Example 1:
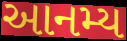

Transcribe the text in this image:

આનમ્ય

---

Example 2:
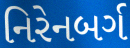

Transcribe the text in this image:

નિરેનબર્ગ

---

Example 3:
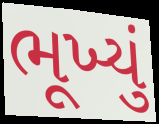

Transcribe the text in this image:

ભૂખ્યું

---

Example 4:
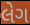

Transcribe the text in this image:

લેગ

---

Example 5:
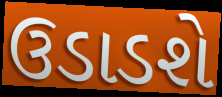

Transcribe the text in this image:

ઉડાડશે